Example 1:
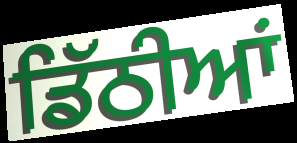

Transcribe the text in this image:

ਡਿੱਠੀਆਂ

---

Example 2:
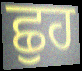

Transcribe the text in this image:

ਛੁਹ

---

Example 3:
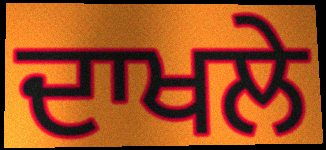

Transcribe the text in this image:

ਦਾਖਲੇ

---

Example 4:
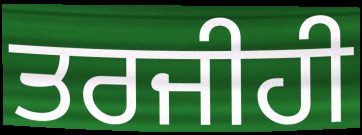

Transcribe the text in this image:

ਤਰਜੀਹੀ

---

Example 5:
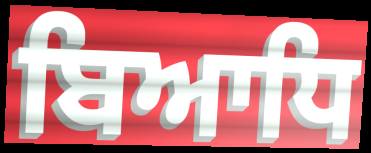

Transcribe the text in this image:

ਬਿਆਧਿ